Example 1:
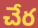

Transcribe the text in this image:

చేర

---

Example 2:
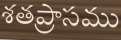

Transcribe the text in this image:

శతప్రాసము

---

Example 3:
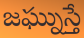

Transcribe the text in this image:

జఘ్నుస్తే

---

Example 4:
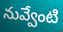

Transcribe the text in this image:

నువ్వేంటి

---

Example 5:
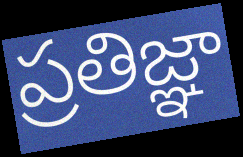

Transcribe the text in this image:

ప్రతిజ్ఞా